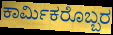
ಕಾರ್ಮಿಕರೊಬ್ಬರ